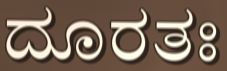
ದೂರತಃ